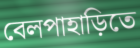
বেলপাহাড়িতে